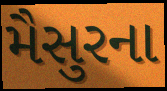
મૈસુરના